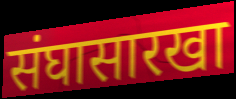
संघासारखा